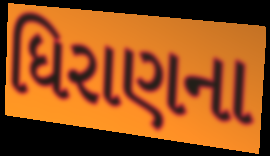
ધિરાણના